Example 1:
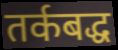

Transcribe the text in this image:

तर्कबद्ध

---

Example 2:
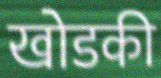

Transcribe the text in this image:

खोडकी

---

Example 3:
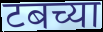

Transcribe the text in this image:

टबच्या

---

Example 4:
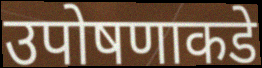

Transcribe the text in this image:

उपोषणाकडे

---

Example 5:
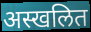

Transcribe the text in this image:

अस्खलित